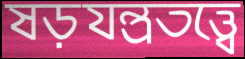
ষড়যন্ত্রতত্ত্বে